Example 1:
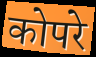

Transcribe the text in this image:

कोपरे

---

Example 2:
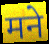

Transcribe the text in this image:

मने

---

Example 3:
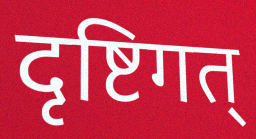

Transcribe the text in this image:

दृष्टिगत्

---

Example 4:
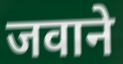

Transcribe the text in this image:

जवाने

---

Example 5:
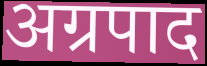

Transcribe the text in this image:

अग्रपाद